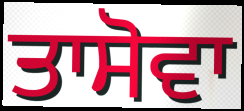
ਤਾਸੋਵਾ